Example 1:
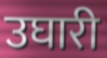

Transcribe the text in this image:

उघारी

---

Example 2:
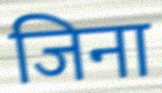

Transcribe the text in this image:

जिना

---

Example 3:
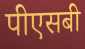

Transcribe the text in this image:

पीएसबी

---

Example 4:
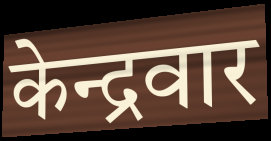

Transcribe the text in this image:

केन्‍द्रवार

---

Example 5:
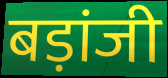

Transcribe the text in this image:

बड़ांजी